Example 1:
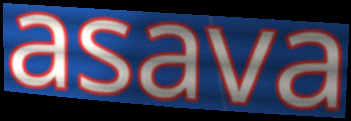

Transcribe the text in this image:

asava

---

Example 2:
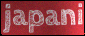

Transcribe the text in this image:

japani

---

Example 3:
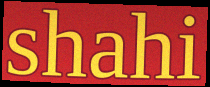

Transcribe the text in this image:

shahi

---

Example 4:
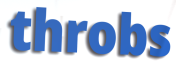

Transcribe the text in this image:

throbs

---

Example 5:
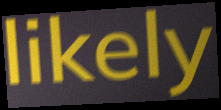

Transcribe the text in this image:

likely